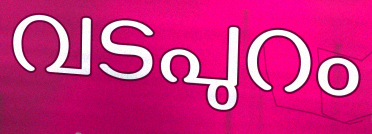
വടപുറം